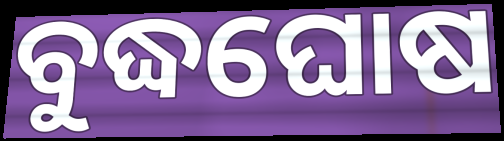
ବୁଦ୍ଧଘୋଷ